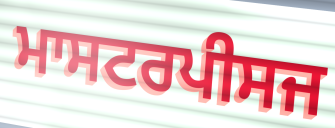
ਮਾਸਟਰਪੀਸਜ